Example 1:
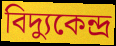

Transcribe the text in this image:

বিদ্যুকেন্দ্র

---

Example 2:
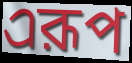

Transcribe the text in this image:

এরূপ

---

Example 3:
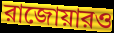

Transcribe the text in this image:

রাজোয়ারও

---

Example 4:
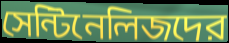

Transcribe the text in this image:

সেন্টিনেলিজদের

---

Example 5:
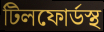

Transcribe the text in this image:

টিলফোর্ডস্থ